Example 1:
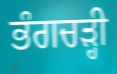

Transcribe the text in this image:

ਭੰਗਚੜ੍ਹੀ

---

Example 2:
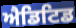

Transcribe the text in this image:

ਐਡਿਟਿਡ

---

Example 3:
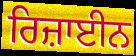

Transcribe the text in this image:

ਰਿਜ਼ਾਈਨ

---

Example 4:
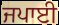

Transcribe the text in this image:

ਜਪਾਈ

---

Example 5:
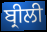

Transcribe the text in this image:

ਬ੍ਰੀਲੀ